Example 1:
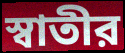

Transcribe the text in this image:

স্বাতীর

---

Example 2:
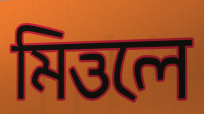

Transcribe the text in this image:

মিত্তলে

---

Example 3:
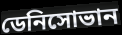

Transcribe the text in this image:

ডেনিসোভান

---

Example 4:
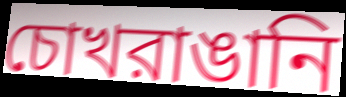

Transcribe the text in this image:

চোখরাঙানি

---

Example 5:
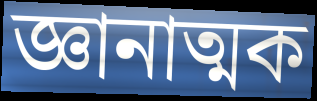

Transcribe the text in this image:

জ্ঞানাত্মক